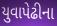
યુવાપેઢીના